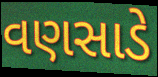
વણસાડે